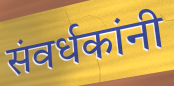
संवर्धकांनी